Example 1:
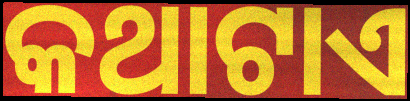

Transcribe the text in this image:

କଥାଟାଏ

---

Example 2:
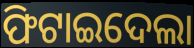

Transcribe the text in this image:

ଫିଟାଇଦେଲା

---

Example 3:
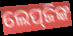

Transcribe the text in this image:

ଲେପ୍‌ଜିଙ୍କ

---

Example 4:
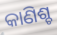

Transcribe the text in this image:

କାଣିଶ୍ଚ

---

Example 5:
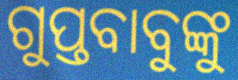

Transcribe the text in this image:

ଗୁପ୍ତବାବୁଙ୍କୁ